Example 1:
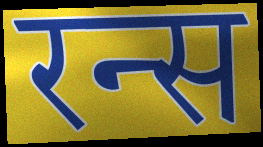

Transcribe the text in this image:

रन्स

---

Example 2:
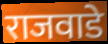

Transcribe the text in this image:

राजवाडे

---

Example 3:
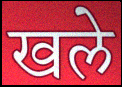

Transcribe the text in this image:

खले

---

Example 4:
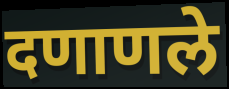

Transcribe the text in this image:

दणाणले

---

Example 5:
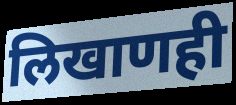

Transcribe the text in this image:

लिखाणही